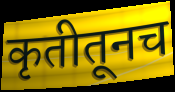
कृतीतूनच